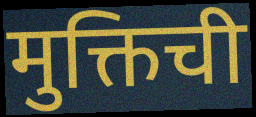
मुक्तिची